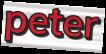
peter